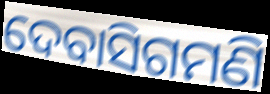
ଦେବାସିଗମଣି